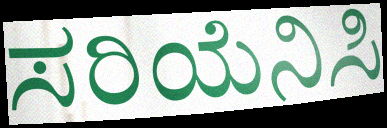
ಸರಿಯೆನಿಸಿ